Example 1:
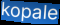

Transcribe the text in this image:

kopale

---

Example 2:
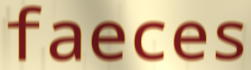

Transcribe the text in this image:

faeces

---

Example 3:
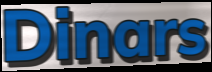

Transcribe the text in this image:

Dinars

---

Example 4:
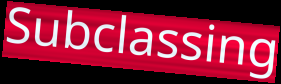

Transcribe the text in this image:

Subclassing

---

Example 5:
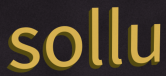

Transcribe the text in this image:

sollu